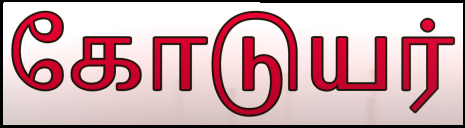
கோடுயர்